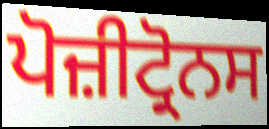
ਪੋਜ਼ੀਟ੍ਰੋਨਸ